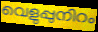
വെളുപ്പുനിറം